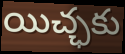
యిచ్ఛకు